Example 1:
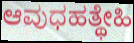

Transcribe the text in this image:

ಆವುಧಹತ್ಥೇಹಿ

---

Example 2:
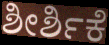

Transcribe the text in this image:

ಶೀರ್ಶಿಕೆ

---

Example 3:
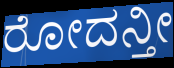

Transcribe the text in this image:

ರೋದನ್ತೀ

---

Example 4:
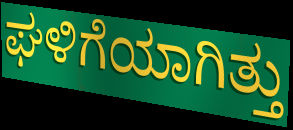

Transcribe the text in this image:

ಘಳಿಗೆಯಾಗಿತ್ತು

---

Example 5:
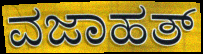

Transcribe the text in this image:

ವಜಾಹತ್